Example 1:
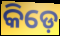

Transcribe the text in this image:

କିଡ଼େ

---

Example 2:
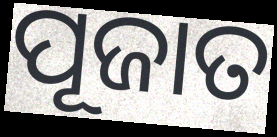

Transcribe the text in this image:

ପୂଜାତ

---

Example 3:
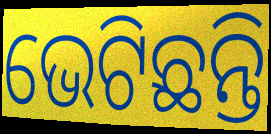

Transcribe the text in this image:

ଭେଟିଛନ୍ତି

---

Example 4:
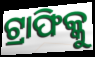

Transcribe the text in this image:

ଟ୍ରାଫିକ୍କୁ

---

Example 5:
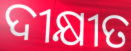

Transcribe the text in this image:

ଦୀକ୍ଷୀତ